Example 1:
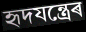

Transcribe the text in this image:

হৃদযন্ত্ৰেৰ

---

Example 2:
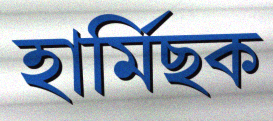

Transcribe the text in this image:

হাৰ্মিছক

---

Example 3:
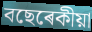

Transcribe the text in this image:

বছেৰেকীয়া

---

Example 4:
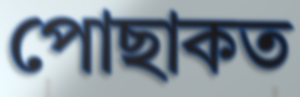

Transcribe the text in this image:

পোছাকত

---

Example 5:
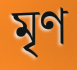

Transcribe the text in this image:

মৃণ